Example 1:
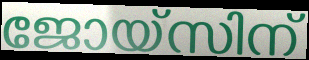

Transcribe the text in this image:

ജോയ്സിന്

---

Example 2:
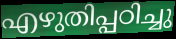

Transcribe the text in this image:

എഴുതിപ്പഠിച്ചു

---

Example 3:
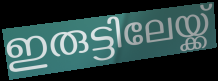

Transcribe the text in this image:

ഇരുട്ടിലേയ്ക്ക്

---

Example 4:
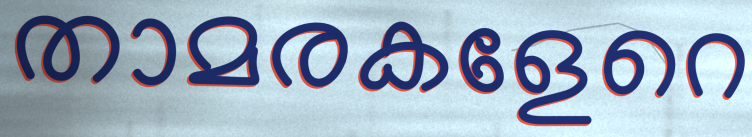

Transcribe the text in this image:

താമരകളേറെ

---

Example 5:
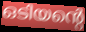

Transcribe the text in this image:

ഒടിയന്റെ